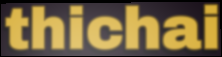
thichai